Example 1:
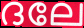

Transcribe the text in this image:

ദലേ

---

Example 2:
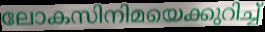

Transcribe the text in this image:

ലോകസിനിമയെക്കുറിച്ച്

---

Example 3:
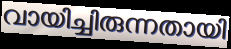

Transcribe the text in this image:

വായിച്ചിരുന്നതായി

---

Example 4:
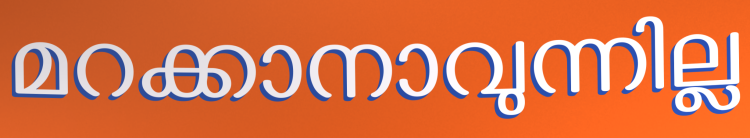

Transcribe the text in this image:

മറക്കാനാവുന്നില്ല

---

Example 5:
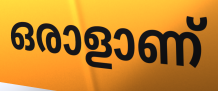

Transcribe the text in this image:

ഒരാളാണ്